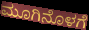
ಮೂಗಿನೊಳಗೆ